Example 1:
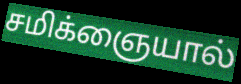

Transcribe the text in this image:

சமிக்ஞையால்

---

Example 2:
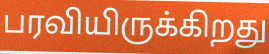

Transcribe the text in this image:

பரவியிருக்கிறது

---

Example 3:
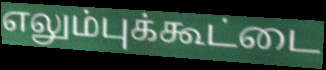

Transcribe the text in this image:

எலும்புக்கூட்டை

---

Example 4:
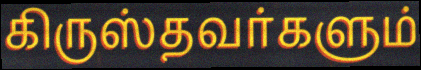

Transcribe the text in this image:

கிருஸ்தவர்களும்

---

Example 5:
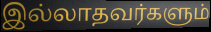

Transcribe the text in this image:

இல்லாதவர்களும்